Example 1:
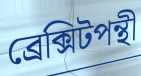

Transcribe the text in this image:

ব্রেক্সিটপন্থী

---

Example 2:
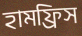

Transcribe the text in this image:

হামফ্রিস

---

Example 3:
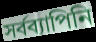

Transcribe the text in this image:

সর্বব্যাপিনি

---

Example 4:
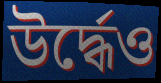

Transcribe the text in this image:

উর্দ্ধেও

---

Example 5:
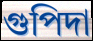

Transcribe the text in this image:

গুপিদা